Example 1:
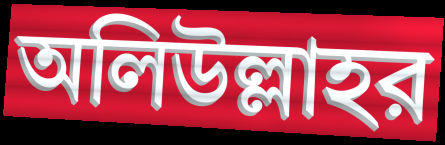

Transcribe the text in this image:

অলিউল্লাহর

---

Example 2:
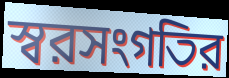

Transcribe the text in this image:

স্বরসংগতির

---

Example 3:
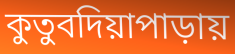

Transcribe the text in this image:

কুতুবদিয়াপাড়ায়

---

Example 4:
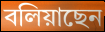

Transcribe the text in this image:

বলিয়াছেন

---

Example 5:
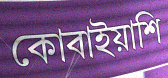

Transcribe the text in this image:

কোবাইয়াশি